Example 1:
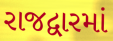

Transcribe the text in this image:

રાજદ્વારમાં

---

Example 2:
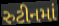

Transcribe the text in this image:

રુટીનમાં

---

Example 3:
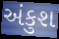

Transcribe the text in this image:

અંકુશ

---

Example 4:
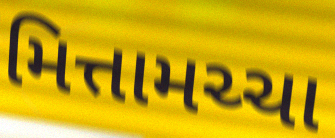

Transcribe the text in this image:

મિત્તામચ્ચા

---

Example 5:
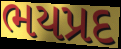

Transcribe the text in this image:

ભયપ્રદ